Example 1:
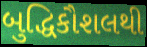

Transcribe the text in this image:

બુદ્ધિકૌશલથી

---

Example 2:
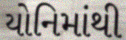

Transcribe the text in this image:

યોનિમાંથી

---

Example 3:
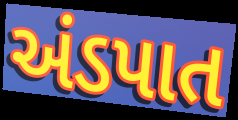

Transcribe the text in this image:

અંડપાત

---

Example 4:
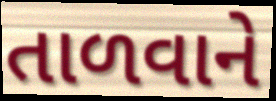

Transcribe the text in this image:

તાળવાને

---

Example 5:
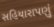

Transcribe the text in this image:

સહિયારાપણું